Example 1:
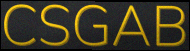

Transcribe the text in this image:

CSGAB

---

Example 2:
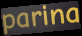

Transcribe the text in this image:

parina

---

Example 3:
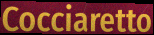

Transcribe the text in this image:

Cocciaretto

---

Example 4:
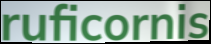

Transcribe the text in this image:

ruficornis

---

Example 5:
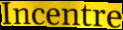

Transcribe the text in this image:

Incentre